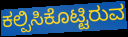
ಕಲ್ಪಿಸಿಕೊಟ್ಟಿರುವ